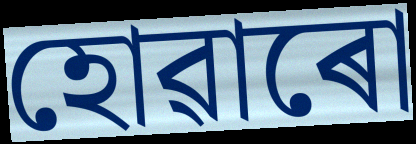
হোৱাৰো